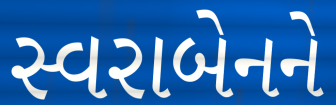
સ્વરાબેનને